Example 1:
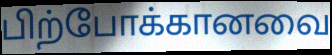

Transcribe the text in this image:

பிற்போக்கானவை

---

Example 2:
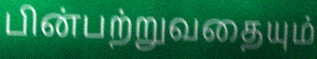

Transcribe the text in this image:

பின்பற்றுவதையும்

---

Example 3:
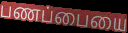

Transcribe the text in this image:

பணப்பையை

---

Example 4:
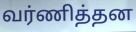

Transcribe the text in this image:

வர்ணித்தன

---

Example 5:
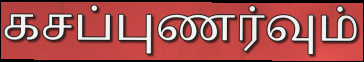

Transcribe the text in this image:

கசப்புணர்வும்